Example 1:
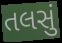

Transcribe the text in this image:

તલસું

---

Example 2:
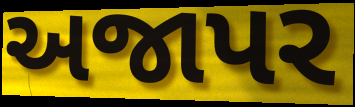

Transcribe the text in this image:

અજાપર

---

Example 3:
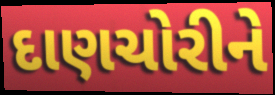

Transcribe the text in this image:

દાણચોરીને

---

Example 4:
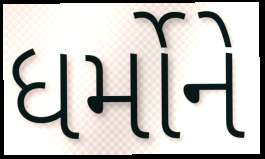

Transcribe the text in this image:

ધર્મોને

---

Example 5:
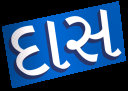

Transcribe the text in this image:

દાસ